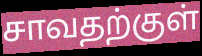
சாவதற்குள்